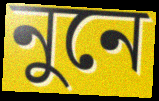
নুনে